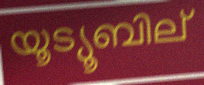
യൂട്യൂബില്